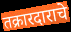
तक्रारदाराचे